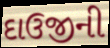
દાઉજીની